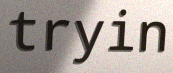
tryin